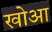
खोआ